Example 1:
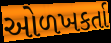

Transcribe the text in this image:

ઓળખકર્તા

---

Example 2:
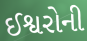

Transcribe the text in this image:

ઈશ્વરોની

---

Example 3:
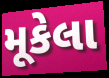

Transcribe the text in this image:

મૂકેલા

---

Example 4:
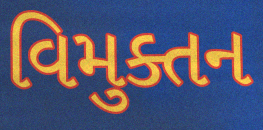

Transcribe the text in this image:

વિમુક્તન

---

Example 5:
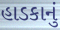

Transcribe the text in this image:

હાડકાનું